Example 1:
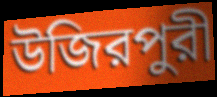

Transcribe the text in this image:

উজিরপুরী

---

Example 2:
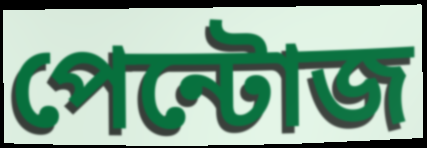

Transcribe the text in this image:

পেন্টোজ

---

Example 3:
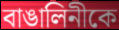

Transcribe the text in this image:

বাঙালিনীকে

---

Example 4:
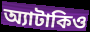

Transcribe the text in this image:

অ্যাটাকিও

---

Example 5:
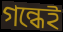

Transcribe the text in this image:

গন্ধেই